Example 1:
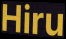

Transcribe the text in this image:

Hiru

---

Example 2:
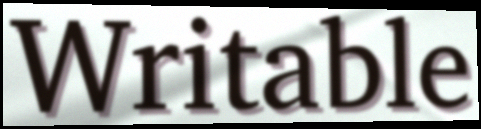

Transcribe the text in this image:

Writable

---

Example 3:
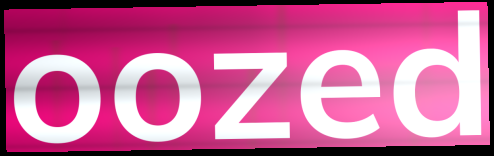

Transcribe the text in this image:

oozed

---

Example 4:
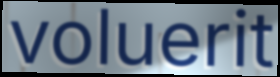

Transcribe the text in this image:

voluerit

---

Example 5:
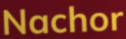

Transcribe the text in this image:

Nachor